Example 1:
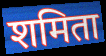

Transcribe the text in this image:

शमिता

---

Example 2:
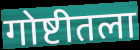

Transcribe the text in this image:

गोष्टीतला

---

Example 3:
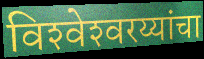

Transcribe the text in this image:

विश्वेश्वरय्यांचा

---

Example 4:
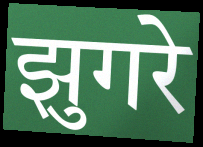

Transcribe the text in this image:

झुगरे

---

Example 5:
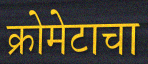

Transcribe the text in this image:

क्रोमेटाचा